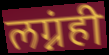
लग्नंही